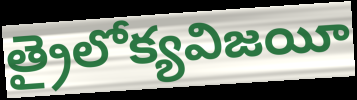
త్రైలోక్యవిజయీ